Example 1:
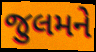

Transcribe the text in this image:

જુલમને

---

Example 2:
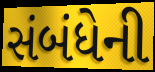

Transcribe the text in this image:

સંબંધેની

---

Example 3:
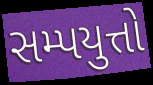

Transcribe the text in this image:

સમ્પયુત્તો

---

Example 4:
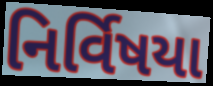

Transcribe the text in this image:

નિર્વિષયા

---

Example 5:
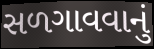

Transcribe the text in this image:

સળગાવવાનું